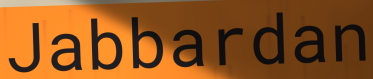
Jabbardan